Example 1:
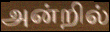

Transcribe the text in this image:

அன்றில்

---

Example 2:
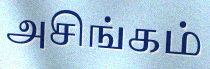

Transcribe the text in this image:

அசிங்கம்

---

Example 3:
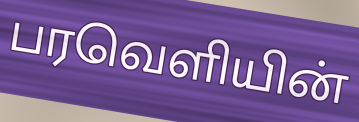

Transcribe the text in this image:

பரவெளியின்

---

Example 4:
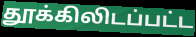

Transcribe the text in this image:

தூக்கிலிடப்பட்ட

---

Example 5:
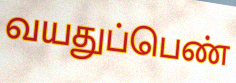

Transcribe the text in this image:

வயதுப்பெண்